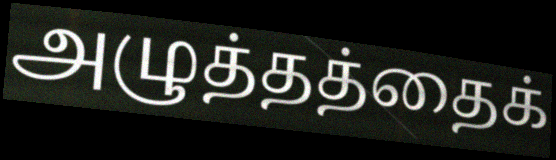
அழுத்தத்தைக்